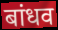
बांधव